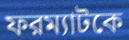
ফরম্যাটকে